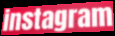
instagram